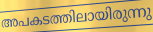
അപകടത്തിലായിരുന്നു